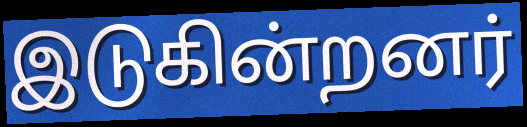
இடுகின்றனர்